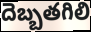
దెబ్బతగిలి